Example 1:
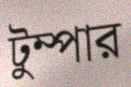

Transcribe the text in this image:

টুম্পার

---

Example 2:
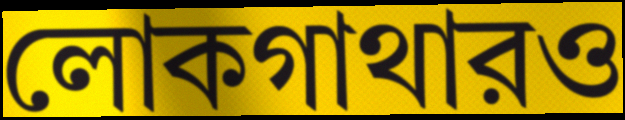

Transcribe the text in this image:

লোকগাথারও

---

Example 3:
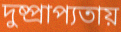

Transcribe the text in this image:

দুষ্প্রাপ্যতায়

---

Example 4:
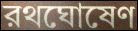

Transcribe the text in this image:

রথঘোষেণ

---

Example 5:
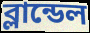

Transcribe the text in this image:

ব্লান্ডেল